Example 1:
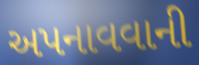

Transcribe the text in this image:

અપનાવવાની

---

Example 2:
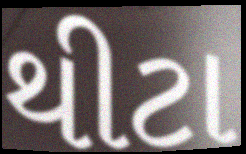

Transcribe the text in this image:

થીટા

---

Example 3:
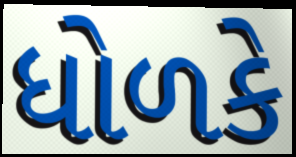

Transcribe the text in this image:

ધોળકે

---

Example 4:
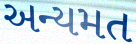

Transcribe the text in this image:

અન્યમત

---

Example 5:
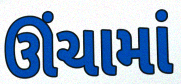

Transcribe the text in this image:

ઊંચામાં